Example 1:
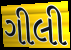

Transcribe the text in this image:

ગીલી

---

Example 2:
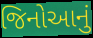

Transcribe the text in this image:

જિનોઆનું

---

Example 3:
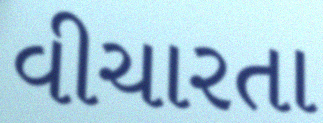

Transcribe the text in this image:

વીચારતા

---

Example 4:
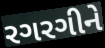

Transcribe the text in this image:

રગરગીને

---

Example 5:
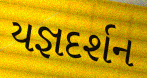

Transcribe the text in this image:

યજ્ઞદર્શન